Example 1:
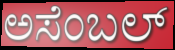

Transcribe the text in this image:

ಅಸೆಂಬಲ್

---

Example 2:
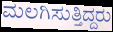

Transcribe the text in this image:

ಮಲಗಿಸುತ್ತಿದ್ದರು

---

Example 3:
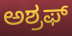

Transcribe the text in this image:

ಅಶ್ರಫ್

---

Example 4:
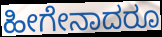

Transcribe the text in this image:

ಹೀಗೇನಾದರೂ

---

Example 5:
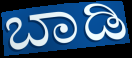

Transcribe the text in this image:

ಬಾಡಿ